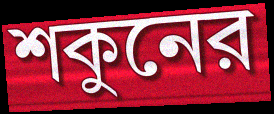
শকুনের